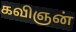
கவிஞன்